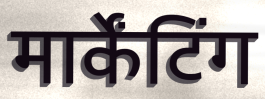
मार्केंटिंग